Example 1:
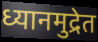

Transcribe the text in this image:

ध्यानमुद्रेत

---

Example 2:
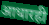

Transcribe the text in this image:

आधारही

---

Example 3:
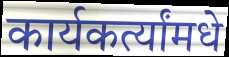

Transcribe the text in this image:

कार्यकर्त्यांमधे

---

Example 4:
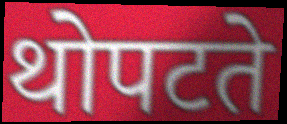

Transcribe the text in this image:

थोपटते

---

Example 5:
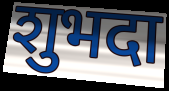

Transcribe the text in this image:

शुभदा